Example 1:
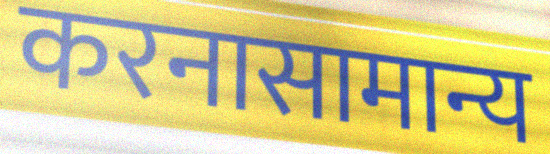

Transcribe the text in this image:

करनासामान्य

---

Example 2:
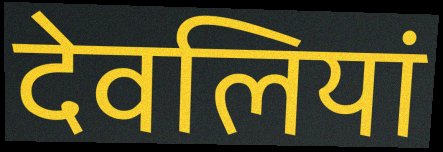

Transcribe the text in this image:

देवलियां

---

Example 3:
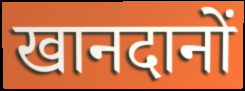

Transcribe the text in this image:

खानदानों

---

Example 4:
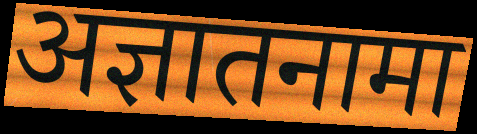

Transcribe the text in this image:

अज्ञातनामा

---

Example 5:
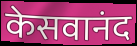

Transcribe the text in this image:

केसवानंद